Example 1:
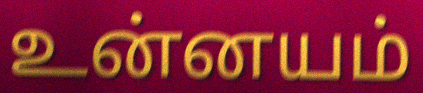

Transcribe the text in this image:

உன்னயம்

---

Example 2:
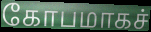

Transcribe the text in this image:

கோபமாகச்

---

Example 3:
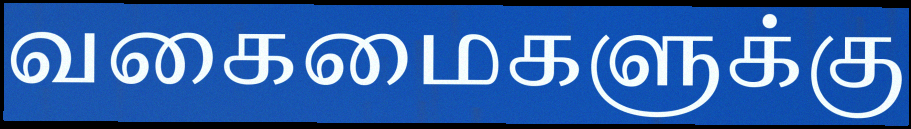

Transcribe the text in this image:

வகைமைகளுக்கு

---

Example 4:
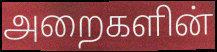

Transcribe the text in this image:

அறைகளின்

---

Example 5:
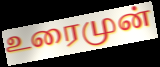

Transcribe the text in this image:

உரைமுன்